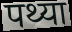
पथ्या